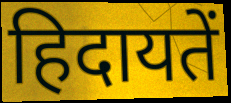
हिदायतें